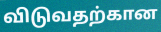
விடுவதற்கான